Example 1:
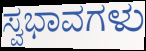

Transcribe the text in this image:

ಸ್ವಭಾವಗಳು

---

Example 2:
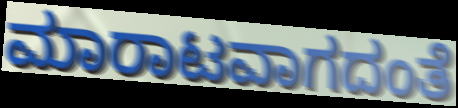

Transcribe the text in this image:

ಮಾರಾಟವಾಗದಂತೆ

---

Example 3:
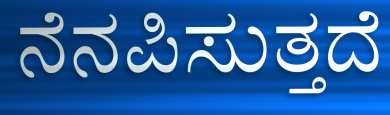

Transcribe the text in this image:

ನೆನಪಿಸುತ್ತದೆ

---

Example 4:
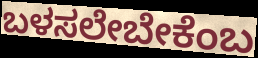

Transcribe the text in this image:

ಬಳಸಲೇಬೇಕೆಂಬ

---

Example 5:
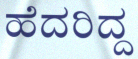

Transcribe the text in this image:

ಹೆದರಿದ್ದ